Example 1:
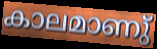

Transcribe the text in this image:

കാലമാണു്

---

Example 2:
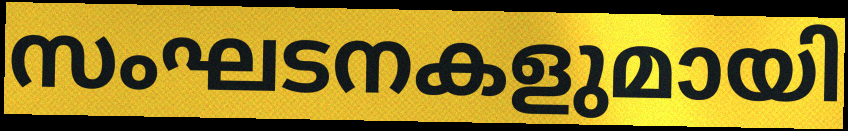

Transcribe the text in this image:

സംഘടനകളുമായി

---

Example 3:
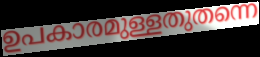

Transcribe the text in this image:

ഉപകാരമുള്ളതുതന്നെ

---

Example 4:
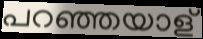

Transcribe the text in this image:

പറഞ്ഞയാള്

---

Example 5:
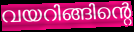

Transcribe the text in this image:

വയറിങ്ങിന്റെ